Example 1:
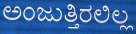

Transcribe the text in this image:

ಅಂಜುತ್ತಿರಲಿಲ್ಲ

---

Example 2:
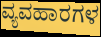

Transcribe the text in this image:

ವ್ಯವಹಾರಗಳ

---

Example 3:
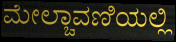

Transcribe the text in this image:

ಮೇಲ್ಚಾವಣಿಯಲ್ಲಿ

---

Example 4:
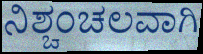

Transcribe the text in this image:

ನಿಶ್ಚಂಚಲವಾಗಿ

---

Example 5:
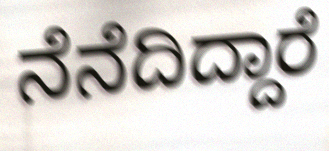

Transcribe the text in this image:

ನೆನೆದಿದ್ದಾರೆ